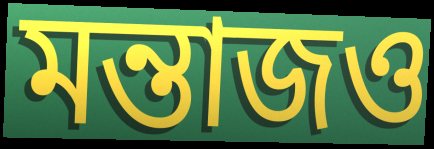
মন্তাজও